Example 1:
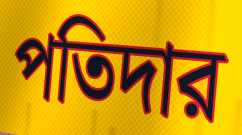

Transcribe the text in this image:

পতিদার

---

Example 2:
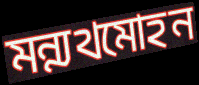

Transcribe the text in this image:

মন্মথমোহন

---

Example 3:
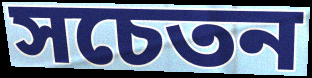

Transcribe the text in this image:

সচেতন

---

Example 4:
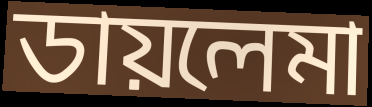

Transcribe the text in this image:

ডায়লেমা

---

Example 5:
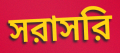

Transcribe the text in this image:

সরাসরি